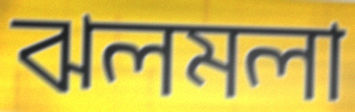
ঝলমলা